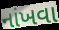
નાંખવા